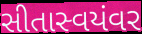
સીતાસ્વયંવર